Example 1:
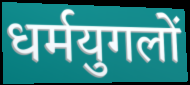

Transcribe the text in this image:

धर्मयुगलों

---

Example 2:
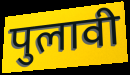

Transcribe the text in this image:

पुलावी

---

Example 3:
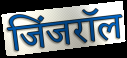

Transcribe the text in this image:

जिंजरॉल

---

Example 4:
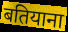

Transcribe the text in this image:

बतियाना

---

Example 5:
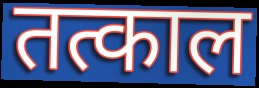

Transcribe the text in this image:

तत्काल